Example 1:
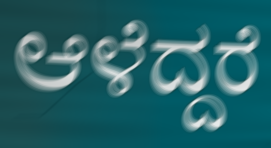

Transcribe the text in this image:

ಆಳೆದ್ದರೆ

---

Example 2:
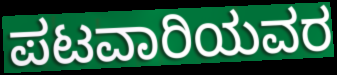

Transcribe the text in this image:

ಪಟವಾರಿಯವರ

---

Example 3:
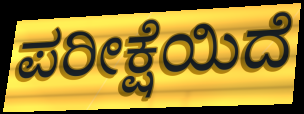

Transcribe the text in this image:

ಪರೀಕ್ಷೆಯಿದೆ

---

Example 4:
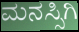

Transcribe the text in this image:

ಮನಸ್ಸಿಗಿ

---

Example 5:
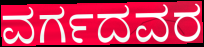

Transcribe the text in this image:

ವರ್ಗದವರ